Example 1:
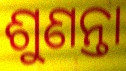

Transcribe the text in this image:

ଶୁଣନ୍ତା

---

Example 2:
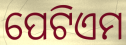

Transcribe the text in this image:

ପେଟିଏମ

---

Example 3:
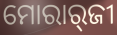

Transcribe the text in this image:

ମୋରାର୍‌ଜୀ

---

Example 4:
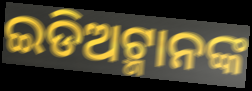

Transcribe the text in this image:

ଇଡିଅଟ୍ମାନଙ୍କ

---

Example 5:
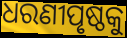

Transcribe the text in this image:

ଧରଣୀପୃଷ୍ଠକୁ